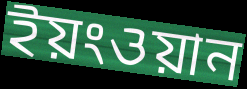
ইয়ংওয়ান